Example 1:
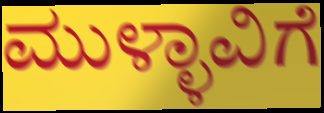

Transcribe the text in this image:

ಮುಳ್ಳಾವಿಗೆ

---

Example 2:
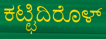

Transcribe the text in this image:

ಕಟ್ಟಿದಿರೊಳ್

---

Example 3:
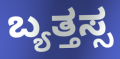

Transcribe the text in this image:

ಬ್ಯತ್ತಸ್ಸ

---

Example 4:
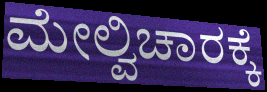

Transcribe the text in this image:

ಮೇಲ್ವಿಚಾರಕ್ಕೆ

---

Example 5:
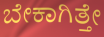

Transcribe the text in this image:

ಬೇಕಾಗಿತ್ತೇ